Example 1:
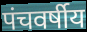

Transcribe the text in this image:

पंचवर्षीय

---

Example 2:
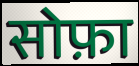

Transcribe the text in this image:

सोफ़ा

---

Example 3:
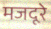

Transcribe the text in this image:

मजदूरे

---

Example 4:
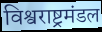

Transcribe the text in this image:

विश्वराष्ट्रमंडल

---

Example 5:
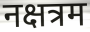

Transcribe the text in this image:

नक्षत्रम